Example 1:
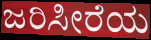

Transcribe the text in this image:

ಜರಿಸೀರೆಯ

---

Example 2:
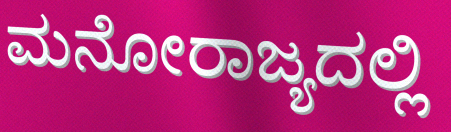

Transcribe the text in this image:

ಮನೋರಾಜ್ಯದಲ್ಲಿ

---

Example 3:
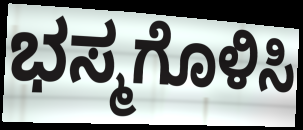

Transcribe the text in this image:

ಭಸ್ಮಗೊಳಿಸಿ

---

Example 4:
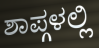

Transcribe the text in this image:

ಶಾಪ್ಗಳಲ್ಲಿ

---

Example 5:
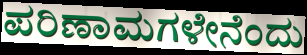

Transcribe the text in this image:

ಪರಿಣಾಮಗಳೇನೆಂದು